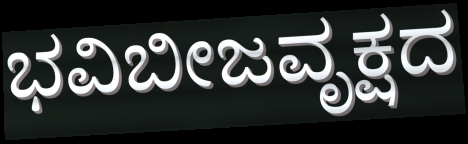
ಭವಿಬೀಜವೃಕ್ಷದ